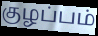
குழப்பம்